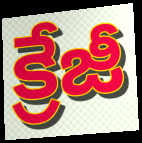
క్రేజీ